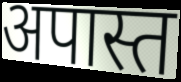
अपास्त